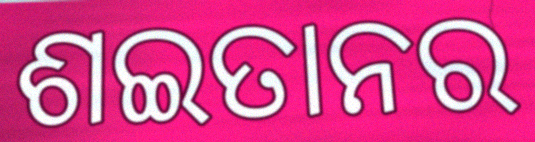
ଶଇତାନର